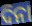
ଦିନା